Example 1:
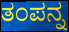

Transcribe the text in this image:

ತಂಪನ್ನ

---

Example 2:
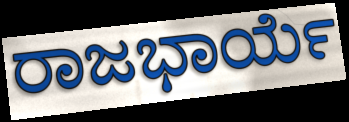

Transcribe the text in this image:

ರಾಜಭಾರ್ಯೆ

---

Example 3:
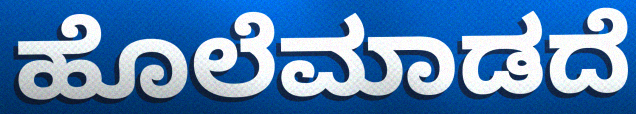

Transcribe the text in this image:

ಹೊಲೆಮಾಡದೆ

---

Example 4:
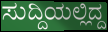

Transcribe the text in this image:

ಸುದ್ದಿಯಲ್ಲಿದ್ದ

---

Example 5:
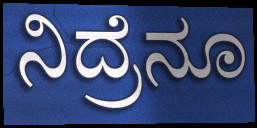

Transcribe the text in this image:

ನಿದ್ರೆನೂ